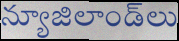
న్యూజిలాండ్‌లు